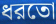
ধরতো